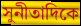
সুনীতাদিকে